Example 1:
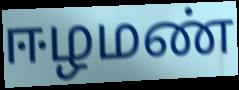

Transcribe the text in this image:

ஈழமண்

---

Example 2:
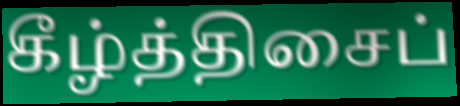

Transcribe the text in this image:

கீழ்த்திசைப்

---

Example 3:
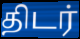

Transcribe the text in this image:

திடர்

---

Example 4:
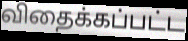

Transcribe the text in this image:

விதைக்கப்பட்ட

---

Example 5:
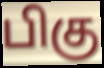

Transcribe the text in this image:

பிகு